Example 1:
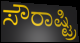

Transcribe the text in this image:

ಸೌರಾಷ್ಟ್ರಿ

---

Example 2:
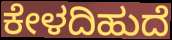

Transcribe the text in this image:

ಕೇಳದಿಹುದೆ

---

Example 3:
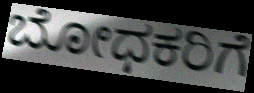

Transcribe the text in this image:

ಬೋಧಕರಿಗೆ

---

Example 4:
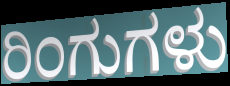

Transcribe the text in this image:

ರಿಂಗುಗಳು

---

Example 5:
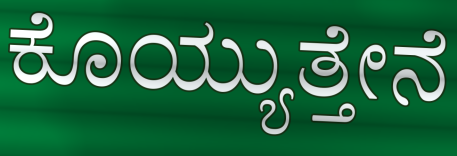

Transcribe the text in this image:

ಕೊಯ್ಯುತ್ತೇನೆ